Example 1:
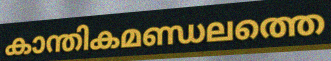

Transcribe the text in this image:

കാന്തികമണ്ഡലത്തെ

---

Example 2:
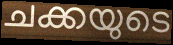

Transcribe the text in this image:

ചക്കയുടെ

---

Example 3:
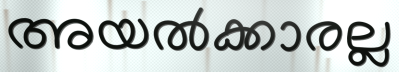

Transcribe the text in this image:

അയൽക്കാരല്ല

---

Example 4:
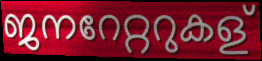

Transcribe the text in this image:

ജനറേറ്ററുകള്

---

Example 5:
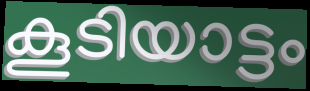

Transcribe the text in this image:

കൂടിയാട്ടം